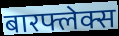
बारफ्लेक्स